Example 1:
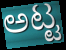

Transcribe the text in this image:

ಅಟ್ಟ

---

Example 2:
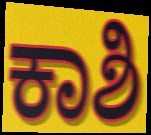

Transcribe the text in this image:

ಕಾಶಿ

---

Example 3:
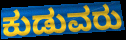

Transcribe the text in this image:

ಕುಡುವರು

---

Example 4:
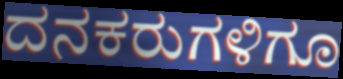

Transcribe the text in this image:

ದನಕರುಗಳಿಗೂ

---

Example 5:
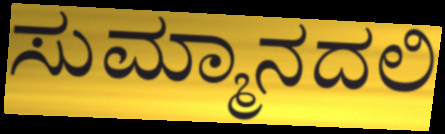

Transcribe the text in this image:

ಸುಮ್ಮಾನದಲಿ